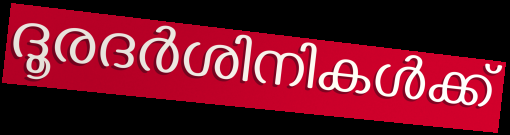
ദൂരദർശിനികൾക്ക്